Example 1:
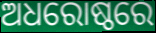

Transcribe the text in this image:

ଅଧରୋଷ୍ଠରେ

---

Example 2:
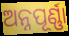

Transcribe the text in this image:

ଅନ୍ନପୂର୍ଣ୍ଣା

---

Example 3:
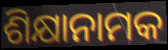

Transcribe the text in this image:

ଶିକ୍ଷାନାମକ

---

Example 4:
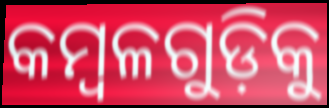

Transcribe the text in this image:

କମ୍ବଳଗୁଡ଼ିକୁ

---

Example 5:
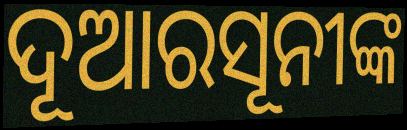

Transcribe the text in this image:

ଦୂଆରସୂନୀଙ୍କ